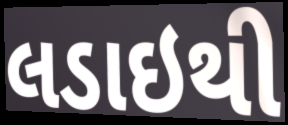
લડાઇથી